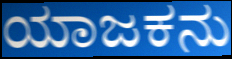
ಯಾಜಕನು